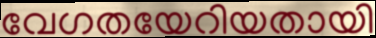
വേഗതയേറിയതായി